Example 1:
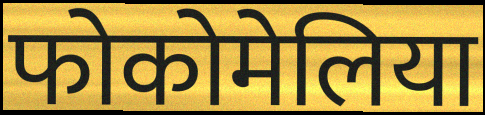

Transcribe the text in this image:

फोकोमेलिया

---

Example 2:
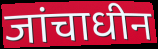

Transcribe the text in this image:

जांचाधीन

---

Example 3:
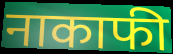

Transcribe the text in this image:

नाकाफी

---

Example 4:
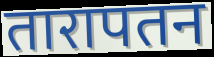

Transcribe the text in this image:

तारापतन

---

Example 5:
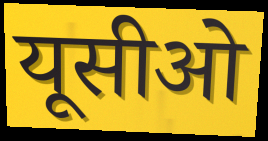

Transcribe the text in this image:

यूसीओ